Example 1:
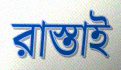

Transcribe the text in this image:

রাস্তাই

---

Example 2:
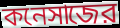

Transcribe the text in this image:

কনেসাজের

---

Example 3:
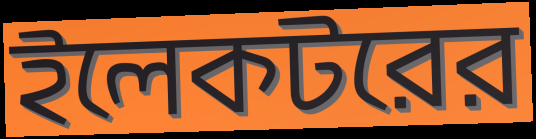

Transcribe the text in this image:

ইলেকটরের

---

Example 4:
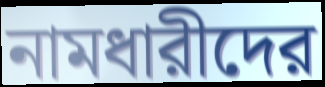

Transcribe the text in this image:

নামধারীদের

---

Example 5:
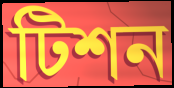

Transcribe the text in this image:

টিশন